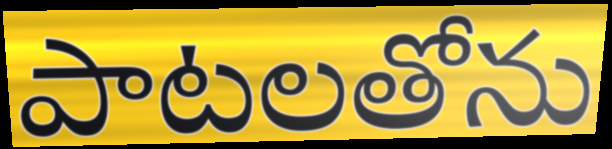
పాటలతోను